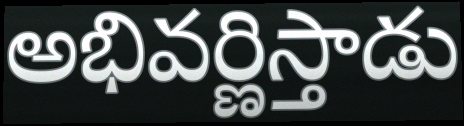
అభివర్ణిస్తాడు